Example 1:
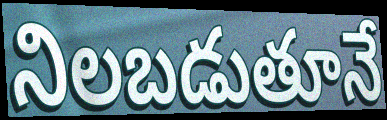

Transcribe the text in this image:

నిలబడుతూనే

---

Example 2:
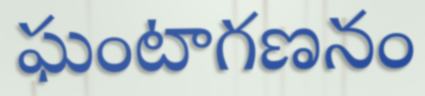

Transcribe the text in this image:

ఘంటాగణనం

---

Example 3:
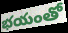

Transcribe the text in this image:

భయంతో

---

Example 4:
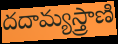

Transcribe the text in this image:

దదామ్యస్త్రాణి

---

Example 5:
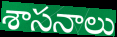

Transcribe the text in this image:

శాసనాలు